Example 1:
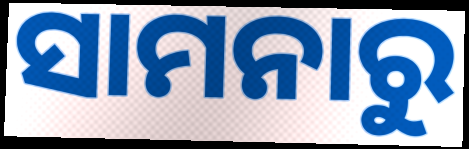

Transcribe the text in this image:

ସାମନାରୁ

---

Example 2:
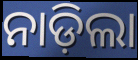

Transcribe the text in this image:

ନାଡ଼ିଲା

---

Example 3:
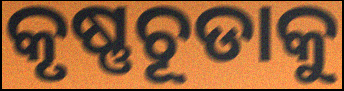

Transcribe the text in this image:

କୃଷ୍ଣଚୂଡାକୁ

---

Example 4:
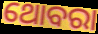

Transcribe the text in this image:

ଥୋବରା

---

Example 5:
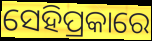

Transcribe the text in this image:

ସେହିପ୍ରକାରେ